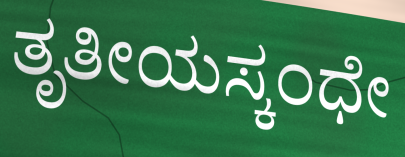
ತೃತೀಯಸ್ಕಂಧೇ